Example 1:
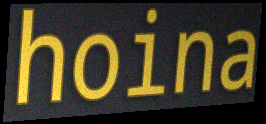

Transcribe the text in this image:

hoina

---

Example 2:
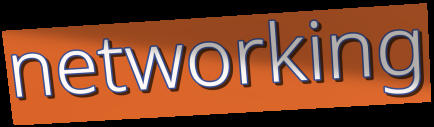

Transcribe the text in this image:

networking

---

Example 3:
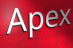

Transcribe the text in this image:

Apex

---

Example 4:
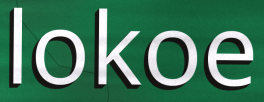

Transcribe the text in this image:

lokoe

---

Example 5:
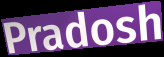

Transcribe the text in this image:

Pradosh